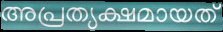
അപ്രത്യക്ഷമായത്